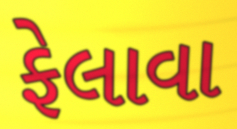
ફેલાવા